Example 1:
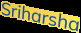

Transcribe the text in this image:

Sriharsha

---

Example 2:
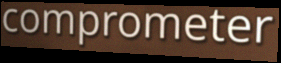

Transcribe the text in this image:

comprometer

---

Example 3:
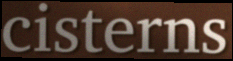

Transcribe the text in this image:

cisterns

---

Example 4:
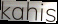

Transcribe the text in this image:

kahis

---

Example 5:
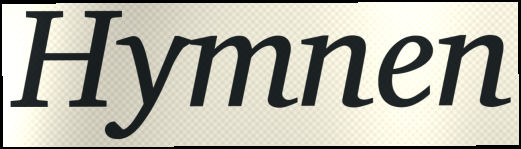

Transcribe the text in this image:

Hymnen